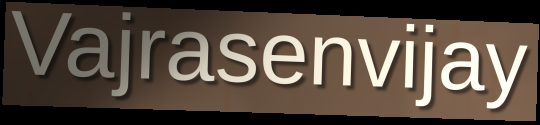
Vajrasenvijay